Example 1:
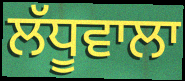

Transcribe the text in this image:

ਲੱਧੂਵਾਲਾ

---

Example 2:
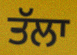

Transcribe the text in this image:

ਤੱਲਾ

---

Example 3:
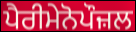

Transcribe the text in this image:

ਪੈਰੀਮੇਨੋਪੌਜ਼ਲ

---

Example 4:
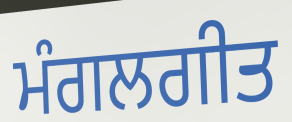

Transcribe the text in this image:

ਮੰਗਲਗੀਤ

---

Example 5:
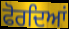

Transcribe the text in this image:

ਫੋਰਦਿਆਂ